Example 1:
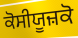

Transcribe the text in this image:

ਕੋਸੀਯੂਜ਼ਕੋ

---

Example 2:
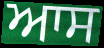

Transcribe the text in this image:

ਆਸ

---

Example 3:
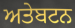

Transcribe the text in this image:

ਅਤੇਬਟਨ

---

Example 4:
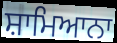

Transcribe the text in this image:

ਸ਼ਾਮਿਆਨਾ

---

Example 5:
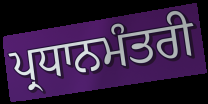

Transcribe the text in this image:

ਪ੍ਰਧਾਨਮੰਤਰੀ